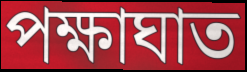
পক্ষাঘাত